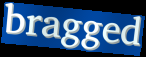
bragged